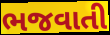
ભજવાતી